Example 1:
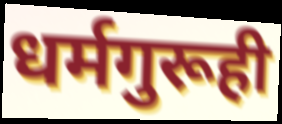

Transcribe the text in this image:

धर्मगुरूही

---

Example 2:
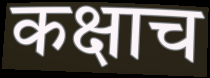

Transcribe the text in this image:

कक्षाच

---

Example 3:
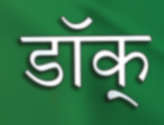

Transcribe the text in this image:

डॉक्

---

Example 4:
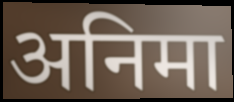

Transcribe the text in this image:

अनिमा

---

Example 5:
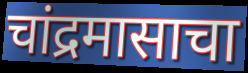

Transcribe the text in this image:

चांद्रमासाचा